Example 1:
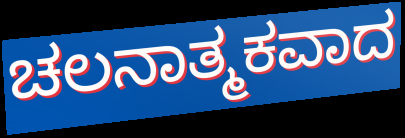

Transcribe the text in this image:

ಚಲನಾತ್ಮಕವಾದ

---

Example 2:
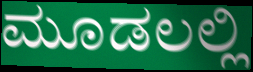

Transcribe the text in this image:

ಮೂಡಲಲ್ಲಿ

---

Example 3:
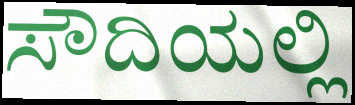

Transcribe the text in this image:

ಸೌದಿಯಲ್ಲಿ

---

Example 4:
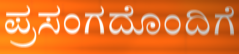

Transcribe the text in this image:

ಪ್ರಸಂಗದೊಂದಿಗೆ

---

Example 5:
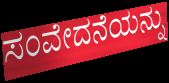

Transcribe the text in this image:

ಸಂವೇದನೆಯನ್ನು